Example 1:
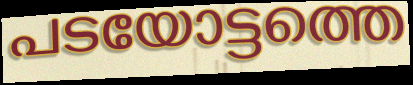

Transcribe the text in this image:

പടയോട്ടത്തെ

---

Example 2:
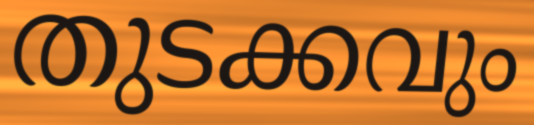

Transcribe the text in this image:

തുടക്കവും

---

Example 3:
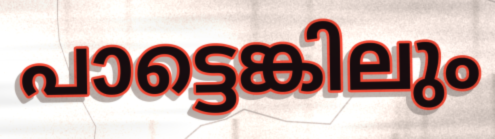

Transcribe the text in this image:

പാട്ടെങ്കിലും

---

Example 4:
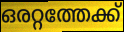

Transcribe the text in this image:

ഒരറ്റത്തേക്ക്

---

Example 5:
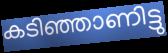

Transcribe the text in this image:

കടിഞ്ഞാണിട്ടു